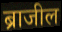
ब्राजील